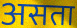
असता